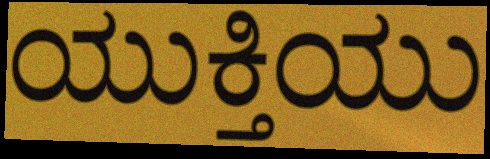
ಯುಕ್ತಿಯು